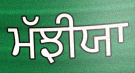
ਮੱਝੀਯਾ